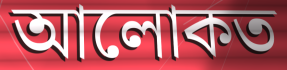
আলোকত